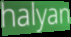
halyan